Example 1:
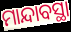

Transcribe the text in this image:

ମାନ୍ଦାବସ୍ଥା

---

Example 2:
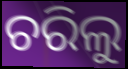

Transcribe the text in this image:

ଚରିଲୁ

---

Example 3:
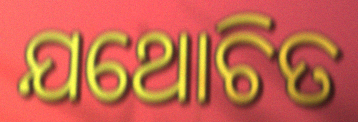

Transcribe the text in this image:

ଯଥୋଚିତ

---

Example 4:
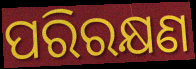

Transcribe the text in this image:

ପରିରକ୍ଷଣ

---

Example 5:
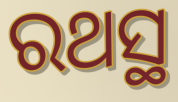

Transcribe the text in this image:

ରଥସ୍ଥ